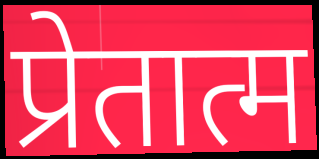
प्रेतात्म